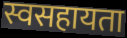
स्वसहायता